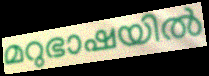
മറുഭാഷയിൽ